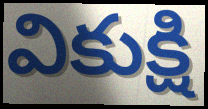
వికుక్షి